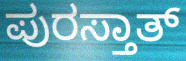
ಪುರಸ್ತಾತ್